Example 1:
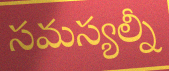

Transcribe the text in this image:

సమస్యల్నీ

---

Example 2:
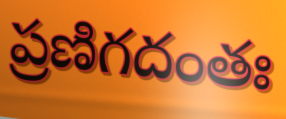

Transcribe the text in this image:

ప్రణిగదంతః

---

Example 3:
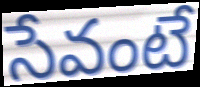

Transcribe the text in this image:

సేవంటే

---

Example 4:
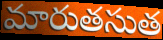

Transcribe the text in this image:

మారుతసుత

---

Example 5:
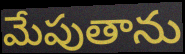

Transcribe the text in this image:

మేపుతాను